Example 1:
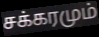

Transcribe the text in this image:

சக்கரமும்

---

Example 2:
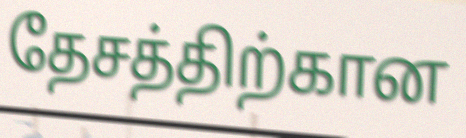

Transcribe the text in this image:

தேசத்திற்கான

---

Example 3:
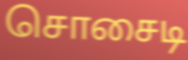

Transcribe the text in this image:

சொசைடி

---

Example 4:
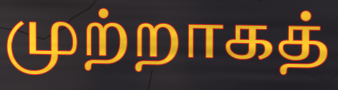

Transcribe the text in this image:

முற்றாகத்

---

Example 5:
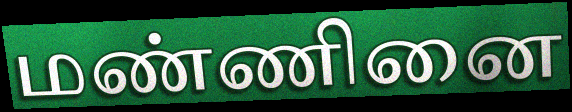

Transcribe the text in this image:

மண்ணினை